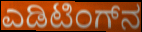
ಎಡಿಟಿಂಗ್‌ನ